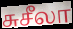
சுசீலா